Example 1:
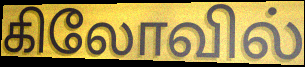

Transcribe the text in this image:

கிலோவில்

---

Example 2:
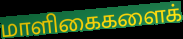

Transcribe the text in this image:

மாளிகைகளைக்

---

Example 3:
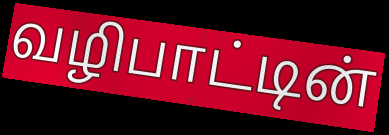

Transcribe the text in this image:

வழிபாட்டின்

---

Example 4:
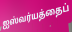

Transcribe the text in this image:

ஐஸ்வர்யத்தைப்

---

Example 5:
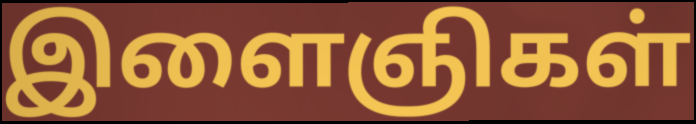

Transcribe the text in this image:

இளைஞிகள்